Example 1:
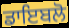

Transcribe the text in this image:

ਡਾਇਬਲੋ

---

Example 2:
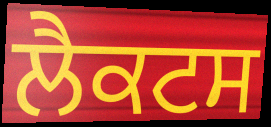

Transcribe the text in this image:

ਲੈਕਟਸ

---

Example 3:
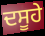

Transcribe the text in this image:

ਦਸੂਹੇ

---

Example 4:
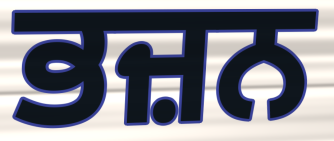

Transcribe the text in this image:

ਭਜ਼ਨ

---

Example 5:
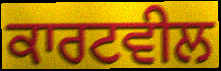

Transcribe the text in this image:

ਕਾਰਟਵੀਲ